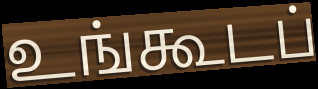
உங்கூடப்